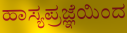
ಹಾಸ್ಯಪ್ರಜ್ಞೆಯಿಂದ